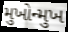
મુખોન્મુખ